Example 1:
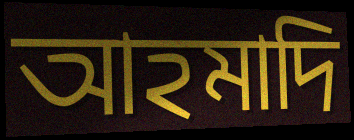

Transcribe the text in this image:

আহমাদি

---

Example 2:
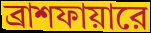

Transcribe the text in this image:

ব্রাশফায়ারে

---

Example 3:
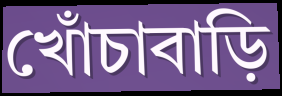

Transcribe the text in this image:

খোঁচাবাড়ি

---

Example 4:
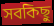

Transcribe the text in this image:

সবকিছু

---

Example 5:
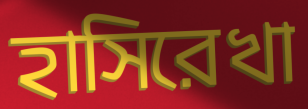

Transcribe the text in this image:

হাসিরেখা